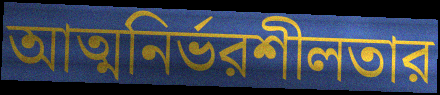
আত্মনির্ভরশীলতার